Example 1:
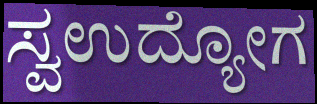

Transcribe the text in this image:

ಸ್ವಉದ್ಯೋಗ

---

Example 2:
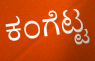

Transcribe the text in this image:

ಕಂಗೆಟ್ಟ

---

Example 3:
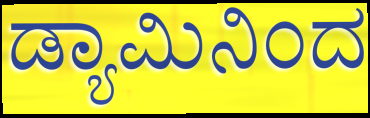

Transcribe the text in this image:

ಡ್ಯಾಮಿನಿಂದ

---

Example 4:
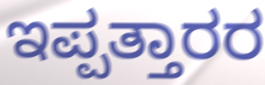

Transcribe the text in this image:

ಇಪ್ಪತ್ತಾರರ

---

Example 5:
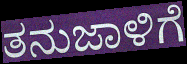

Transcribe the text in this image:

ತನುಜಾಳಿಗೆ